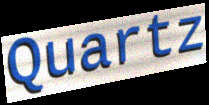
Quartz